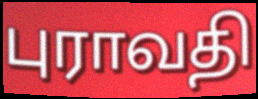
புராவதி